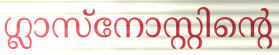
ഗ്ലാസ്നോസ്റ്റിന്റെ